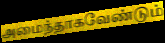
அமைந்தாகவேண்டும்